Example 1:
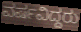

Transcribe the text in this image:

ವರ್ಷವಿದ್ದರು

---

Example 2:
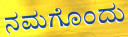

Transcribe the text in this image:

ನಮಗೊಂದು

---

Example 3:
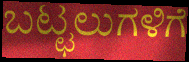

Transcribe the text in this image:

ಬಟ್ಟಲುಗಳಿಗೆ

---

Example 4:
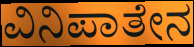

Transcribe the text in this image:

ವಿನಿಪಾತೇನ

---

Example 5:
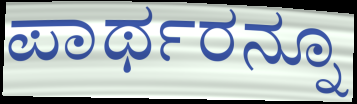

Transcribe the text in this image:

ಪಾರ್ಥರನ್ನೂ